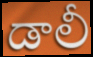
డాలీ